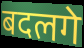
बदलगे